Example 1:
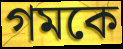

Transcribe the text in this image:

গমকে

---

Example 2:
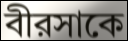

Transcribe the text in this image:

বীরসাকে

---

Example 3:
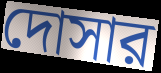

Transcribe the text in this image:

দোসার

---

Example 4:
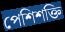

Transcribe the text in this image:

পেশিশক্তি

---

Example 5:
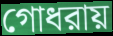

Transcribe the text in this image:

গোধরায়